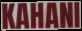
KAHANI